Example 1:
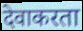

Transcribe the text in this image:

देवाकरता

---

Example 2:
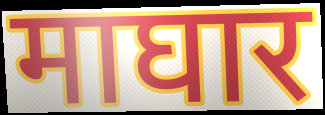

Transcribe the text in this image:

माघार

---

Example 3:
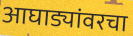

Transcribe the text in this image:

आघाड्यांवरचा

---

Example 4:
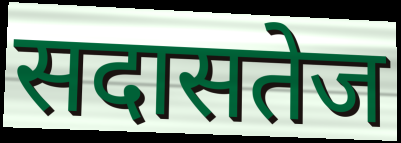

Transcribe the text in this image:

सदासतेज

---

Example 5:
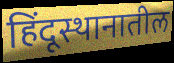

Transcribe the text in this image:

हिंदूस्थानातील